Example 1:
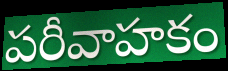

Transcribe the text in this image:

పరీవాహకం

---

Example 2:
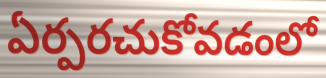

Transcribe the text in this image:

ఏర్పరచుకోవడంలో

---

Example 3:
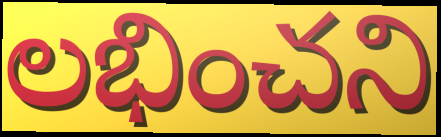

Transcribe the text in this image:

లభించని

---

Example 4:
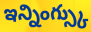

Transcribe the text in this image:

ఇన్నింగ్స్కు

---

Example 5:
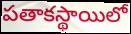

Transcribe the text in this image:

పతాకస్థాయిలో